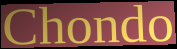
Chondo